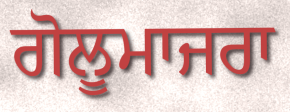
ਗੋਲੂਮਾਜਰਾ